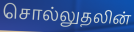
சொல்லுதலின்